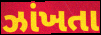
ઝાંખતા